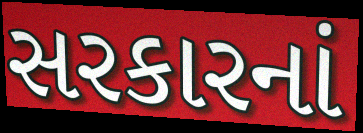
સરકારનાં